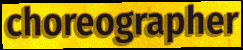
choreographer